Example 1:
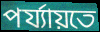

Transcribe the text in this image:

পৰ্য্যায়তে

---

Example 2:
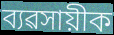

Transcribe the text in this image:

ব্যৱসায়ীক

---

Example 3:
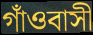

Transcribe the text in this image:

গাঁওবাসী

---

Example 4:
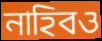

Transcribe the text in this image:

নাহিবও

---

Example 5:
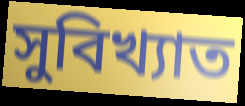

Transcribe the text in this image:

সুবিখ্যাত